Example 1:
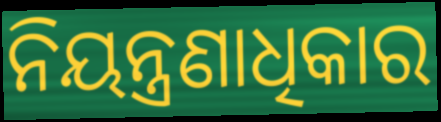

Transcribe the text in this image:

ନିୟନ୍ତ୍ରଣାଧିକାର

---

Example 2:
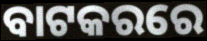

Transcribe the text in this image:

ବାଟକରରେ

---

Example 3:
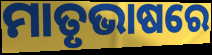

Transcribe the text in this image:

ମାତୃଭାଷରେ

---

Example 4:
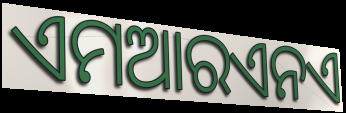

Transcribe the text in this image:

ଏମଆରଏନଏ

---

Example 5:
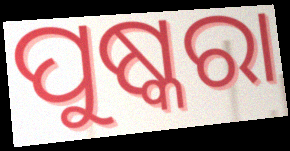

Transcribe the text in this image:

ପୁଷ୍କରା